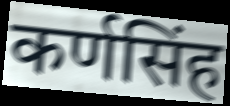
कर्णसिंह